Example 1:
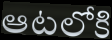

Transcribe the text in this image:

ఆటలోకి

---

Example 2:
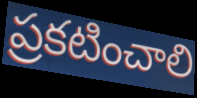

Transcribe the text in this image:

ప్రకటించాలి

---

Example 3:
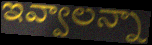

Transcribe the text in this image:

ఇవ్వాలన్నా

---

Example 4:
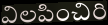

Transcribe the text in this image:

విలపించిరి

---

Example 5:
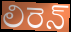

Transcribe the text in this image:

లిరెన్